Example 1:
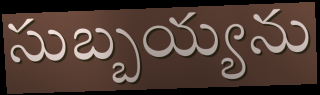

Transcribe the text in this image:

సుబ్బయ్యను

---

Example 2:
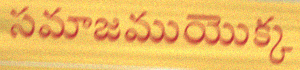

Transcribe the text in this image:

సమాజముయొక్క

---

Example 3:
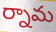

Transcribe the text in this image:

ర్నామ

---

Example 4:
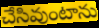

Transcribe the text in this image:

చేసివుంటాను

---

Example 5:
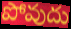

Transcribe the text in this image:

పోవుదు